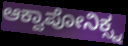
ಆಕ್ವಾಪೋನಿಕ್ಸ್ನ